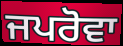
ਜਪਰੋਵਾ